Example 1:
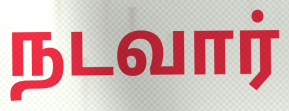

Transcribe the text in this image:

நடவார்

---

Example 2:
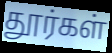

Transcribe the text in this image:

தூர்கள்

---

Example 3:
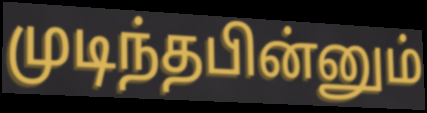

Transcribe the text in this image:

முடிந்தபின்னும்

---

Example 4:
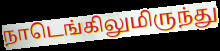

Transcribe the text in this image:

நாடெங்கிலுமிருந்து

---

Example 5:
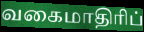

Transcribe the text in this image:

வகைமாதிரிப்